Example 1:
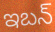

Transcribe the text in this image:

ఇబన్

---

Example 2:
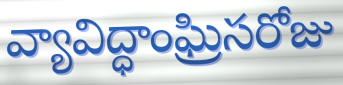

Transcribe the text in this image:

వ్యావిద్ధాంఘ్రిసరోజు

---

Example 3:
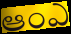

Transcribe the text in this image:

ఆంఎ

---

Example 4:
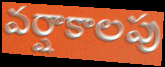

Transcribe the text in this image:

వర్షాకాలపు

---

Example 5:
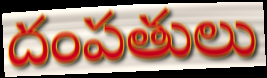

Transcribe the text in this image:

దంపతులు